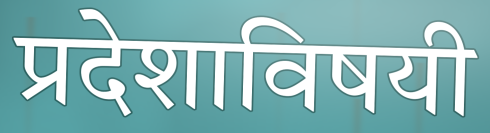
प्रदेशाविषयी